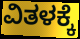
ವಿತಳಕ್ಕೆ